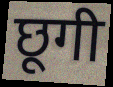
छूगी